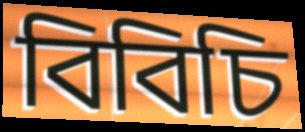
বিবিচি